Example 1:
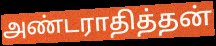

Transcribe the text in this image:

அண்டராதித்தன்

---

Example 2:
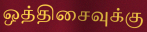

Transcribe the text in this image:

ஒத்திசைவுக்கு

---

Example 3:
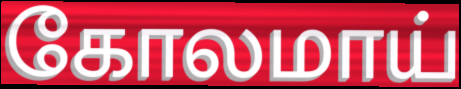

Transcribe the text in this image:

கோலமாய்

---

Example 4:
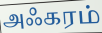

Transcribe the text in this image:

அஃகரம்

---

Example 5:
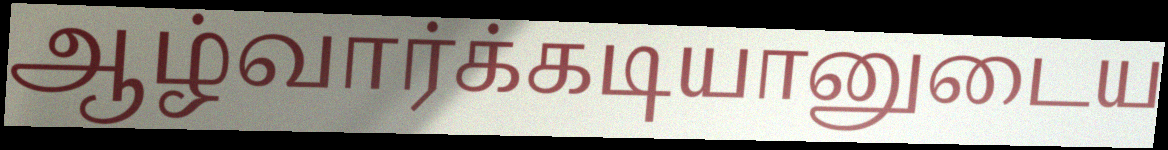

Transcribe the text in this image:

ஆழ்வார்க்கடியானுடைய